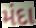
મંદા